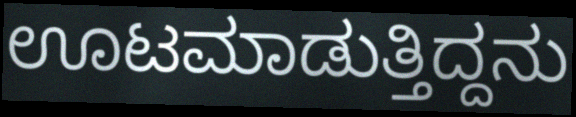
ಊಟಮಾಡುತ್ತಿದ್ದನು